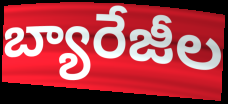
బ్యారేజీల